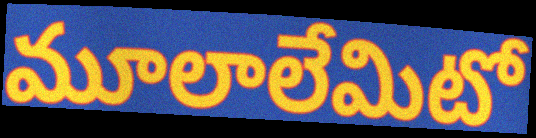
మూలాలేమిటో